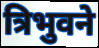
त्रिभुवने